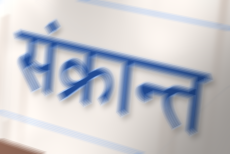
संक्रान्त